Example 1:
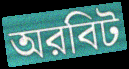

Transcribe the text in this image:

অরবিট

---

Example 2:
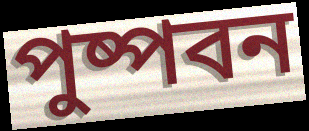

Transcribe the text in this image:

পুষ্পবন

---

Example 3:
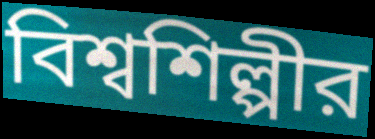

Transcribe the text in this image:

বিশ্বশিল্পীর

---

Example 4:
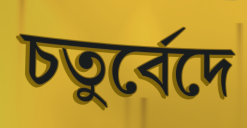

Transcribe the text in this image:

চতুর্বেদে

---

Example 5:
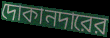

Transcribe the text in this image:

দোকানদারের